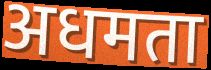
अधमता